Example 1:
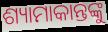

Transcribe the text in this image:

ଶ୍ୟାମାକାନ୍ତଙ୍କୁ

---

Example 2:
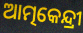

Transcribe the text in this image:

ଆତ୍ମକେନ୍ଦ୍ରୀ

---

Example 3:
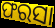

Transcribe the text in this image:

ଫରସା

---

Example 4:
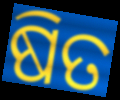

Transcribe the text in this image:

ଷିତ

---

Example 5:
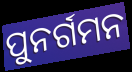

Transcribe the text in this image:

ପୁନର୍ଗମନ